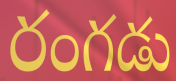
రంగడు